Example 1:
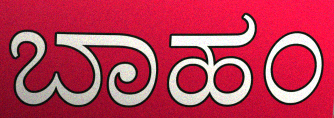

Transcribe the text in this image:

ಬಾಹಂ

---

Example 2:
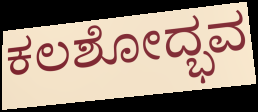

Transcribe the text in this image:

ಕಲಶೋದ್ಭವ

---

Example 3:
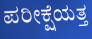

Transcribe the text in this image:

ಪರೀಕ್ಷೆಯತ್ತ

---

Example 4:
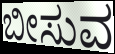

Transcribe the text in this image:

ಬೀಸುವ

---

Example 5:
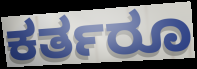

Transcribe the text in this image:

ಕರ್ತರೂ